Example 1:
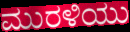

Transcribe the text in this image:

ಮುರಳಿಯು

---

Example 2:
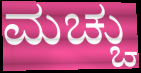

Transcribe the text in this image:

ಮಚ್ಚು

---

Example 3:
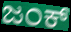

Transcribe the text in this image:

ಜಂಕ್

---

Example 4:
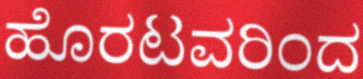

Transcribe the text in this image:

ಹೊರಟವರಿಂದ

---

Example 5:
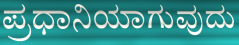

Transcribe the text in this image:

ಪ್ರಧಾನಿಯಾಗುವುದು